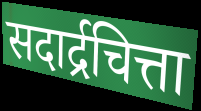
सदार्द्रचित्ता